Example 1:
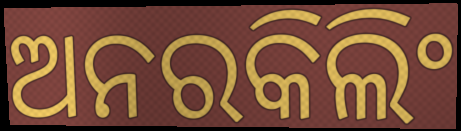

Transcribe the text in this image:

ଅନରକିଲିଂ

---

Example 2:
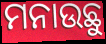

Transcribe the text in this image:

ମନାଉଛୁ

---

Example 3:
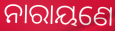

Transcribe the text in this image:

ନାରାୟଣେ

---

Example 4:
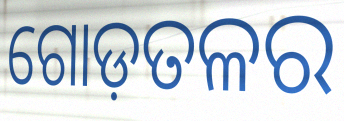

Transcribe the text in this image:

ଗୋଡ଼ତଳର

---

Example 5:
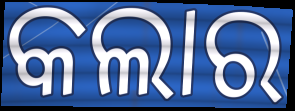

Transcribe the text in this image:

କଲାର